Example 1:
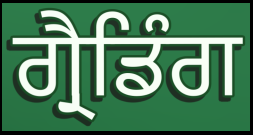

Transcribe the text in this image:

ਗ੍ਰੈਡਿੰਗ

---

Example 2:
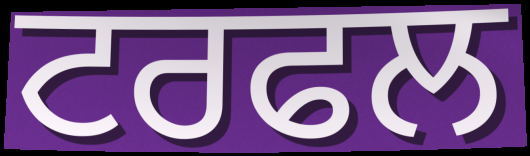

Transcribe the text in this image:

ਟਰਫਲ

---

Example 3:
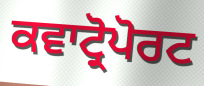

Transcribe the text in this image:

ਕਵਾਟ੍ਰੋਪੋਰਟ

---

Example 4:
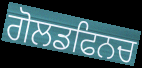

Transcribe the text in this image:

ਗੋਲਡਫਿਨਚ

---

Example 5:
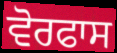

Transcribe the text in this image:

ਵੋਰਫਾਸ